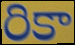
రికా